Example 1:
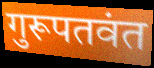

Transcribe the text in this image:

गुरूपतवंत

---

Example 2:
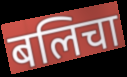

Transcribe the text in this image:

बलिचा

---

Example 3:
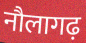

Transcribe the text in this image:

नौलागढ़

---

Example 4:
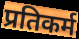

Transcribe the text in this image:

प्रतिकर्म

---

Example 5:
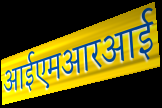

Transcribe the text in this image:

आईएमआरआई